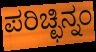
ಪರಿಚ್ಛಿನ್ನಂ